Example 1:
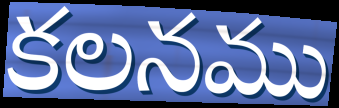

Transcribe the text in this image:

కలనము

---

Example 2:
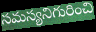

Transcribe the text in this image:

సమస్యనిగురించి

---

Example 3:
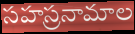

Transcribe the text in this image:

సహస్రనామాల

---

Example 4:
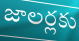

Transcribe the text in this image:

జాలర్లకు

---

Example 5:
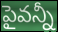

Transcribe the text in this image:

పైవన్నీ